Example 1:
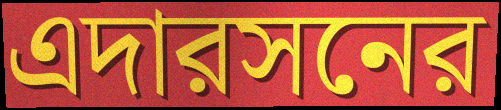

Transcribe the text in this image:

এদারসনের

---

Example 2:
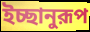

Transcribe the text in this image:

ইচ্ছানুরূপ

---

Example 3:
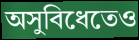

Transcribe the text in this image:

অসুবিধেতেও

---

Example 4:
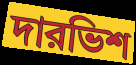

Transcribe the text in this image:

দারভিশ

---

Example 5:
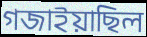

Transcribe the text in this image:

গজাইয়াছিল